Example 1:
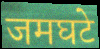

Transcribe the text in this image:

जमघटे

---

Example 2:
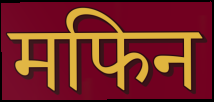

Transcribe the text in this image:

मफिन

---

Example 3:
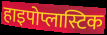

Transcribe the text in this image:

हाइपोप्लास्टिक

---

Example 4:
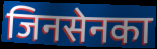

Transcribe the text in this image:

जिनसेनका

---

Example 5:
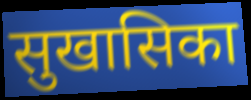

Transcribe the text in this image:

सुखासिका